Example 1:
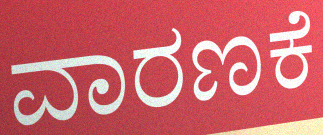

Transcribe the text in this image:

ವಾರಣಕೆ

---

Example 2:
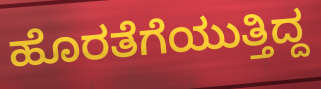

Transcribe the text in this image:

ಹೊರತೆಗೆಯುತ್ತಿದ್ದ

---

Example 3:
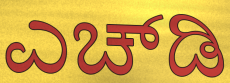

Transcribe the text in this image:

ಎಚ್‍ಡಿ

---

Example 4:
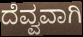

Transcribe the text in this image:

ದೆವ್ವವಾಗಿ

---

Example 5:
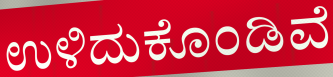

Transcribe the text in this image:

ಉಳಿದುಕೊಂಡಿವೆ